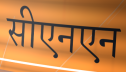
सीएनएन